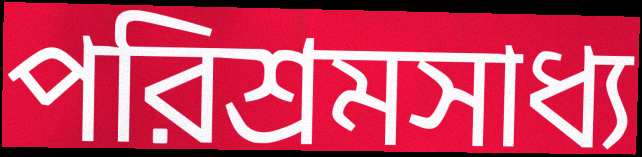
পরিশ্রমসাধ্য